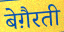
बेग़ैरती